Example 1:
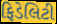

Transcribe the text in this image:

ફિડેલિટી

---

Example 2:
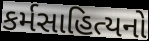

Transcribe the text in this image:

કર્મસાહિત્યનો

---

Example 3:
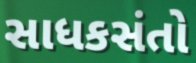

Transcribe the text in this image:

સાધકસંતો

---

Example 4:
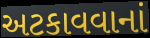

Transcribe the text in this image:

અટકાવવાનાં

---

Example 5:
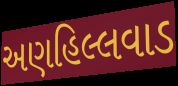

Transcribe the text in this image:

અણહિલ્લવાડ